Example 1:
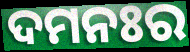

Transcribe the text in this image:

ଦମନଃର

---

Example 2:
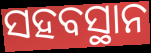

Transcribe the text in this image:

ସହବସ୍ଥାନ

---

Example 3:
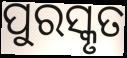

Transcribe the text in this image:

ପୁରସ୍କୃତ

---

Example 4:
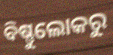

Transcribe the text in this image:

ବିଷ୍ଣୁଲୋକରୁ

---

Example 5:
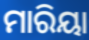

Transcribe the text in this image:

ମାରିୟା